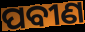
ପବୀଣ